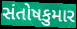
સંતોષકુમાર